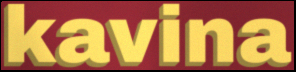
kavina